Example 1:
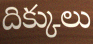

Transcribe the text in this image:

దిక్కులు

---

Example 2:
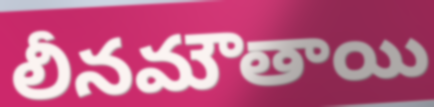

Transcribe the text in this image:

లీనమౌతాయి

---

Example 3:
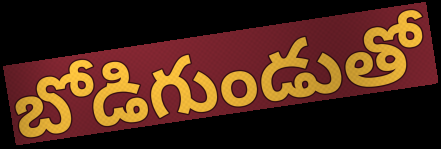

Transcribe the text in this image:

బోడిగుండుతో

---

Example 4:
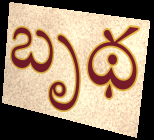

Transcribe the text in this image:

బృథ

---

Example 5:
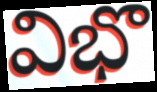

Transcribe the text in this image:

విభొ